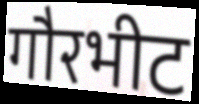
गौरभीट